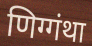
णिग्गंथा